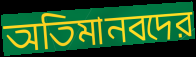
অতিমানবদের